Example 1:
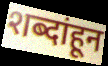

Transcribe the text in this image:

शब्दांहून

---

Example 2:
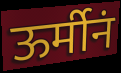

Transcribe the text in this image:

ऊर्मीनं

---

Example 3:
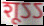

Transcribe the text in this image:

शूऽऽ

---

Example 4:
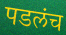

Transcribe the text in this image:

पडलंच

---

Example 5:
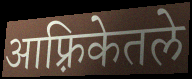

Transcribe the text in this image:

आफ़्रिकेतले